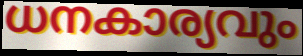
ധനകാര്യവും